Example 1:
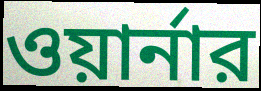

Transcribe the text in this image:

ওয়ার্নার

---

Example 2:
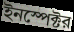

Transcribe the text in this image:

ইনস্পেক্টর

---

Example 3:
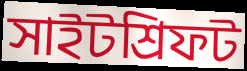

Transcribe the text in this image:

সাইটশ্রিফট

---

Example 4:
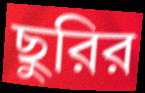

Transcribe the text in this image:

ছুরির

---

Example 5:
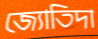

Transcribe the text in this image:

জ্যোতিদা